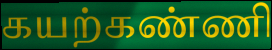
கயற்கண்ணி